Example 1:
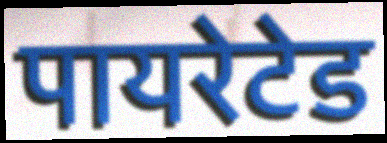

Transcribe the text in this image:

पायरेटेड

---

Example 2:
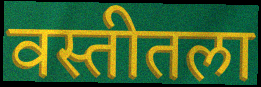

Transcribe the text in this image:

वस्तीतला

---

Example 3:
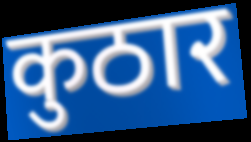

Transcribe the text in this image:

कुठार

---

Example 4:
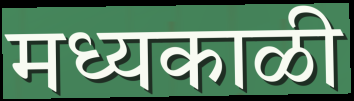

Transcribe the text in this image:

मध्यकाळी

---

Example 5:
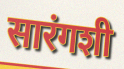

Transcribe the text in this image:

सारंगशी